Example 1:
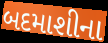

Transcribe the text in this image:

બદમાશીના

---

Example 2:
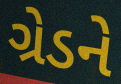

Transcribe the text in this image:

ગ્રેડને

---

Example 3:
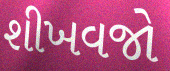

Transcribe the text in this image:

શીખવજો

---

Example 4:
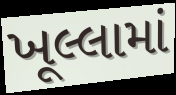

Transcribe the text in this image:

ખૂલ્લામાં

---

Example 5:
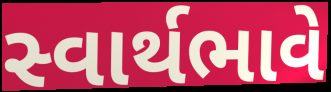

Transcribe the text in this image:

સ્વાર્થભાવે